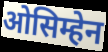
ओसिम्हेन